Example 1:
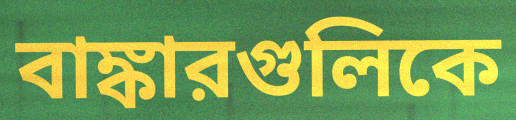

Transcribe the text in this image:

বাঙ্কারগুলিকে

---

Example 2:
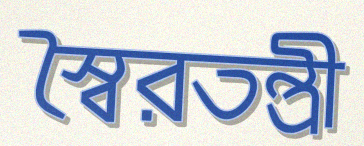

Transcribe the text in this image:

স্বৈরতন্ত্রী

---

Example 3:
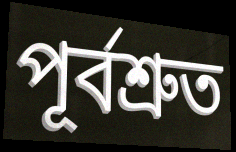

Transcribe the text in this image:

পূর্বশ্রুত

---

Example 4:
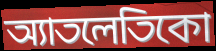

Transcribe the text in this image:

অ্যাতলেতিকো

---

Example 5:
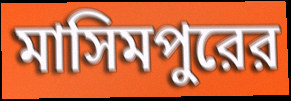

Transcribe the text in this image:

মাসিমপুরের